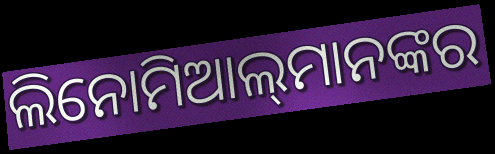
ଲିନୋମିଆଲ୍‌ମାନଙ୍କର